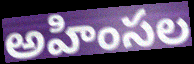
అహింసల